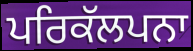
ਪਰਿਕੱਲਪਨਾ